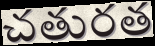
చతురత